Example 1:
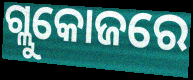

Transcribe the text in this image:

ଗ୍ଲୁକୋଜରେ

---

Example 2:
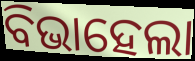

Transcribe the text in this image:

ବିଭାହେଲା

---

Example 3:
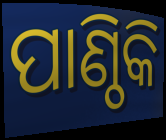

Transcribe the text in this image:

ପାଣ୍ଠିକି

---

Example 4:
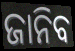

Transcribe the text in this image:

ଜାନିବ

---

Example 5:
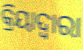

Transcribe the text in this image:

କ୍ରିୟାଦ୍ଵାରା